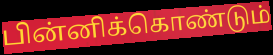
பின்னிக்கொண்டும்